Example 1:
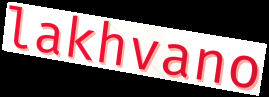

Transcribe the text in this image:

lakhvano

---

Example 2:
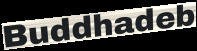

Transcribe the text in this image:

Buddhadeb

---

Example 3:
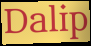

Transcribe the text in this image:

Dalip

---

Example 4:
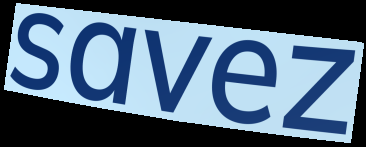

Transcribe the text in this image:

savez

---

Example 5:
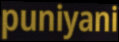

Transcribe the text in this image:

puniyani